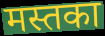
मस्तका